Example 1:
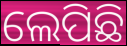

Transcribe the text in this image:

ଲେପିଛି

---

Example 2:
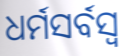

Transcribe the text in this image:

ଧର୍ମସର୍ବସ୍ୱ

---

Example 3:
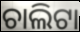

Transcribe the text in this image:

ଚାଲିଟା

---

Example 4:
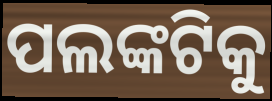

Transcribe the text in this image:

ପଲଙ୍କଟିକୁ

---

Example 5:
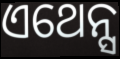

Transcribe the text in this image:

ଏଥେନ୍ସ